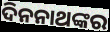
ଦିନନାଥଙ୍କର